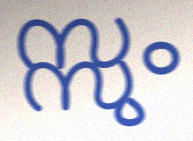
സ്സും